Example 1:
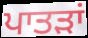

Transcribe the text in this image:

ਪਾਤੜਾਂ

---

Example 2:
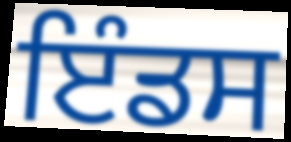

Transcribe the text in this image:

ਇੰਡਸ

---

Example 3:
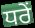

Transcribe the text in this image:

ਧਰੇਂ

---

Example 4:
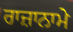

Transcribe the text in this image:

ਰਾਜ਼ਾਨਾਮੇ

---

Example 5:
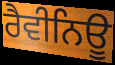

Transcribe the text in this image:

ਰੈਵੀਨਿਊ